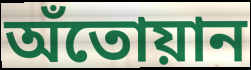
অঁতোয়ান